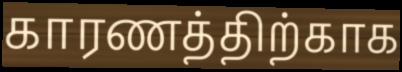
காரணத்திற்காக